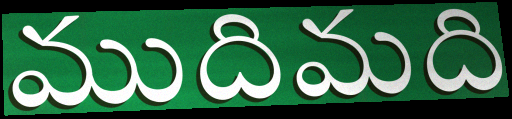
ముదిమది